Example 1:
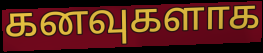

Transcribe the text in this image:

கனவுகளாக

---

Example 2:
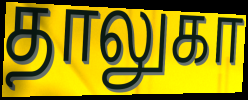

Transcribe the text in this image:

தாலுகா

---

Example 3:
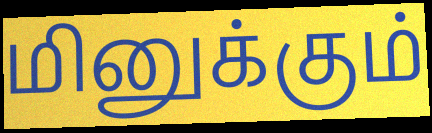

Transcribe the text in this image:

மினுக்கும்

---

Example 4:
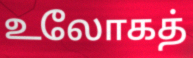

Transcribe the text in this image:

உலோகத்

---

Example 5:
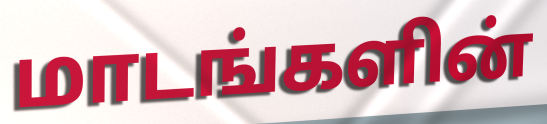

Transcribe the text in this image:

மாடங்களின்